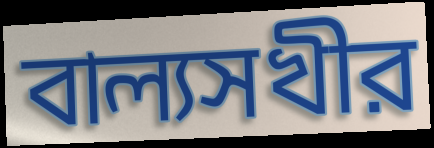
বাল্যসখীর